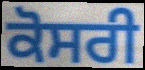
ਕੋਸਰੀ